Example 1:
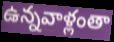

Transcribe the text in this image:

ఉన్నవాళ్లంతా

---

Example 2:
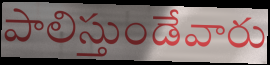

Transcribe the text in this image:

పాలిస్తుండేవారు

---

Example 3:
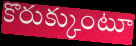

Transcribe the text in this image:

కొరుక్కుంటూ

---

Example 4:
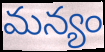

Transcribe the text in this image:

మన్యం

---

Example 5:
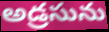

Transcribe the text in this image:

అడ్రసును